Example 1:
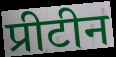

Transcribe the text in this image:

प्रीटीन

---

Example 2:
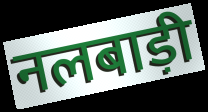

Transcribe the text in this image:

नलबाड़ी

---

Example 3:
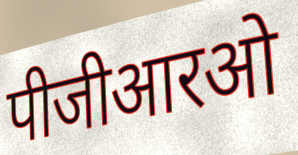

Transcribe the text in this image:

पीजीआरओ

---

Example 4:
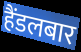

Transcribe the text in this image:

हैंडलबार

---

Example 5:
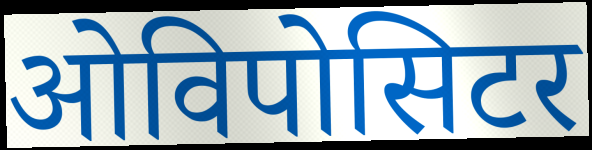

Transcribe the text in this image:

ओविपोसिटर